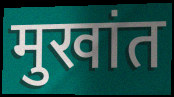
मुखांत